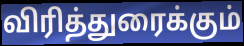
விரித்துரைக்கும்